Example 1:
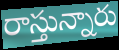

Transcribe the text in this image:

రాస్తున్నారు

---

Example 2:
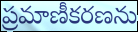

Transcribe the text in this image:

ప్రమాణీకరణను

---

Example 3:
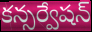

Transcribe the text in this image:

కన్సర్వేషన్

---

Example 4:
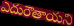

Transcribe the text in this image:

ఎదురౌతాయని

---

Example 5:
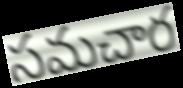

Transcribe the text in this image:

సమచార